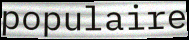
populaire